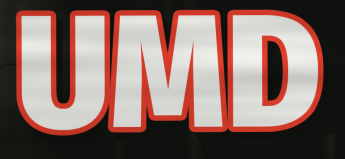
UMD